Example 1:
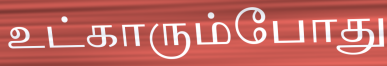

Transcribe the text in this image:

உட்காரும்போது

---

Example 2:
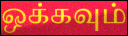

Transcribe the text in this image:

ஒக்கவும்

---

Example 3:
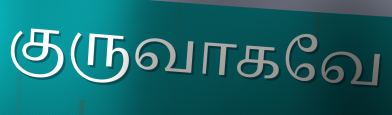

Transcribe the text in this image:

குருவாகவே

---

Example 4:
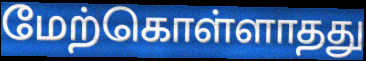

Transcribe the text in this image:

மேற்கொள்ளாதது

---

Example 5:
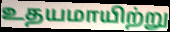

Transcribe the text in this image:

உதயமாயிற்று